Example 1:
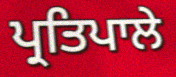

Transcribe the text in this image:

ਪ੍ਰਤਿਪਾਲੇ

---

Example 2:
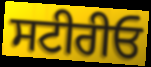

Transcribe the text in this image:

ਸਟੀਰੀਓ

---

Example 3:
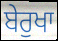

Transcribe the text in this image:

ਬੇਰੁਖਾ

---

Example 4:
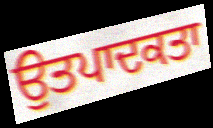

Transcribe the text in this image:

ਉਤਪਾਦਕਤਾ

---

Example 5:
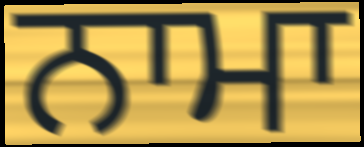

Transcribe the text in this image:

ਨਾਮਾ